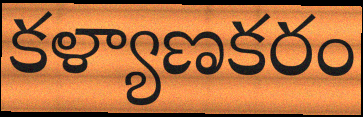
కళ్యాణకరం